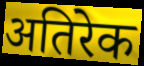
अतिरेक